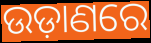
ଉଡ଼ାଣରେ